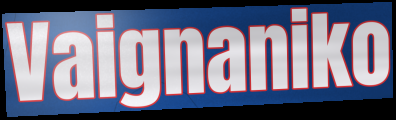
Vaignaniko